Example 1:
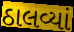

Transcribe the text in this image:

ઠાલવ્યાં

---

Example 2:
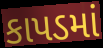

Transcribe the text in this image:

કાપડમાં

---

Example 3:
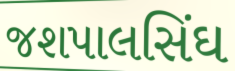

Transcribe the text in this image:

જશપાલસિંઘ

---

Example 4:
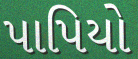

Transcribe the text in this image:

પાપિયો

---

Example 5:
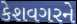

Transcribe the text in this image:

કેશવગરને